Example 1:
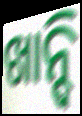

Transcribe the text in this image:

ଖାନ୍ଦି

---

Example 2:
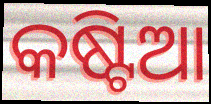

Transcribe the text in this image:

କଷ୍ଟିଆ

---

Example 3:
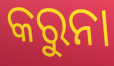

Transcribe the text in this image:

କରୁନା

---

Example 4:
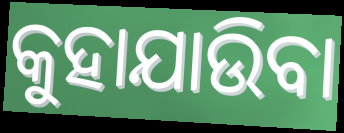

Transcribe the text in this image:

କୁହାଯାଉିବା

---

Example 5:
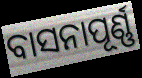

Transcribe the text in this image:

ବାସନାପୂର୍ଣ୍ଣ